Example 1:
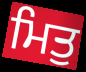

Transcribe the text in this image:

ਮਿਤੁ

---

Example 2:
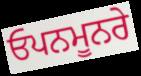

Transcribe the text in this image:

ਓਪਨਮੂਨਰੇ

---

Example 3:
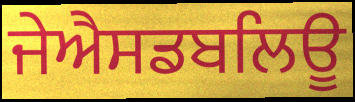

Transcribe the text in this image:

ਜੇਐਸਡਬਲਿਊ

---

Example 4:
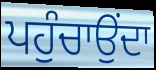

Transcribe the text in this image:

ਪਹੁੰਚਾਉਂਦਾ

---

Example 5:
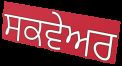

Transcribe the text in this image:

ਸਕਵੇਅਰ